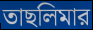
তাছলিমার